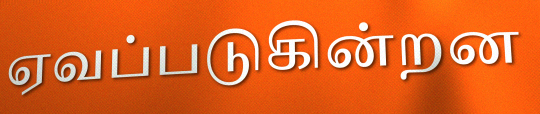
ஏவப்படுகின்றன